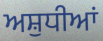
ਅਸ਼ੁਧੀਆਂ